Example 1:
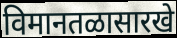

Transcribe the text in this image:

विमानतळासारखे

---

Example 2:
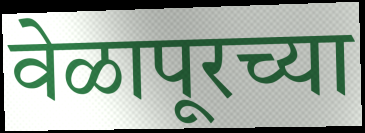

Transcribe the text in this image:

वेळापूरच्या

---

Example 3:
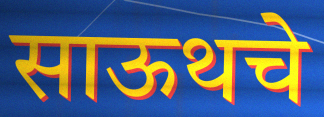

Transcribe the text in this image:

साऊथचे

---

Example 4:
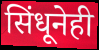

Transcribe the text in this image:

सिंधूनेही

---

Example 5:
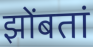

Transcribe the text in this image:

झोंबतां